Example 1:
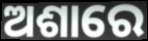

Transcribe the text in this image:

ଅଶାରେ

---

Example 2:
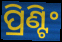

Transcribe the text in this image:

ପ୍ରିଣ୍ଟିଂ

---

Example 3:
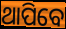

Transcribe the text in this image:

ଥାପିବେ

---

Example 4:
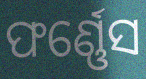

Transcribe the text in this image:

ଫର୍ଣ୍ଣେସ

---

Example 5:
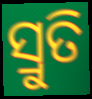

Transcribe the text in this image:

ସ୍ରୁତି